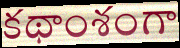
కథాంశంగా